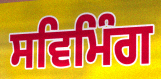
ਸਵਿਮਿੰਗ